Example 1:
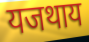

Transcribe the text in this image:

यजथाय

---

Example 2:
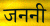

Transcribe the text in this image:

जननी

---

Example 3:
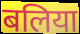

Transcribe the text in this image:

बलिया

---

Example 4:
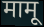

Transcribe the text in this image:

मामू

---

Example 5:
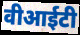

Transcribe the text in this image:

वीआईटी